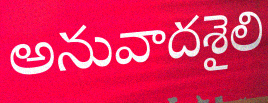
అనువాదశైలి